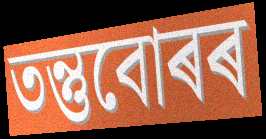
তন্তুবোৰৰ